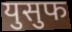
युसुफ